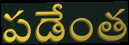
పడేంత